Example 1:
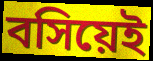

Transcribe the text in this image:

বসিয়েই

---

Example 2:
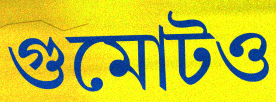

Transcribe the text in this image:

গুমোটও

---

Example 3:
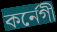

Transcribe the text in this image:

কর্নেগী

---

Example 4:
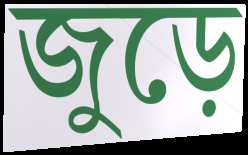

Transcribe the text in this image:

জুড়ে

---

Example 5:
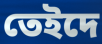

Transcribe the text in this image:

তেইদে